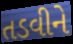
તડવીને